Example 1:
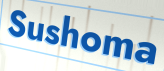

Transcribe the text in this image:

Sushoma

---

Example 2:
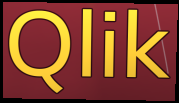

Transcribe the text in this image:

Qlik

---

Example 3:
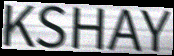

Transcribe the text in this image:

KSHAY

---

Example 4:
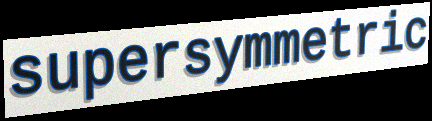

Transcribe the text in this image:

supersymmetric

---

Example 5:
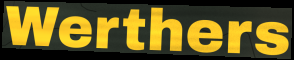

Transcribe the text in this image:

Werthers